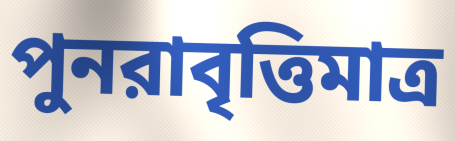
পুনরাবৃত্তিমাত্র